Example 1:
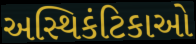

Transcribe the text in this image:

અસ્થિકંટિકાઓ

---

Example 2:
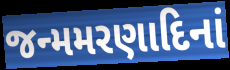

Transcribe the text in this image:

જન્મમરણાદિનાં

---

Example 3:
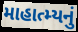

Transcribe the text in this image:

માહાત્મ્યનું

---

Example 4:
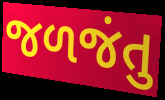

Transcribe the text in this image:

જળજંતુ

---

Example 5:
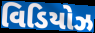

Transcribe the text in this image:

વિડિયોઝ